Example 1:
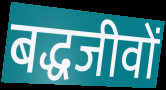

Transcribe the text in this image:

बद्धजीवों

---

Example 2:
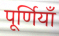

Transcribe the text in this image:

पूर्णियाँ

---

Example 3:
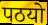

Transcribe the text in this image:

पठयो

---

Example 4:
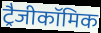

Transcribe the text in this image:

ट्रैजीकॉमिक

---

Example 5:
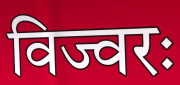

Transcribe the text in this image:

विज्वरः